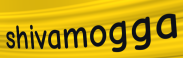
shivamogga